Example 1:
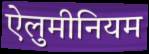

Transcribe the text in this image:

ऐलुमीनियम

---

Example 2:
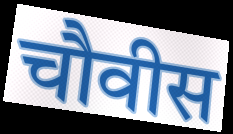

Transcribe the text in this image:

चौवीस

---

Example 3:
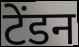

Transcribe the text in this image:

टेंडन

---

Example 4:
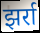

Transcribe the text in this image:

झर्रा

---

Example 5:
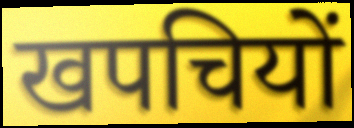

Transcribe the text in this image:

खपचियों